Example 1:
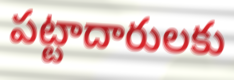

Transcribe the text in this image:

పట్టాదారులకు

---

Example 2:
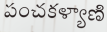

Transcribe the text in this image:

పంచకళ్యాణి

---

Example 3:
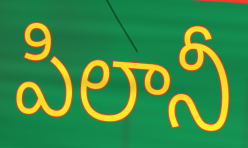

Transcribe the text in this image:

పిలానీ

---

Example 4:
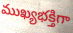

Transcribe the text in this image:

ముఖ్యభక్తిగా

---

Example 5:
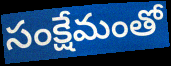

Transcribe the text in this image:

సంక్షేమంతో